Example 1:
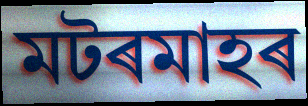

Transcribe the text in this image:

মটৰমাহৰ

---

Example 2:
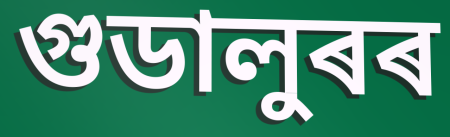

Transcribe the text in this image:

গুডালুৰৰ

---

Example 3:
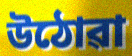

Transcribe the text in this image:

উঠোৱা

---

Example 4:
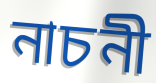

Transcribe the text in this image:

নাচনী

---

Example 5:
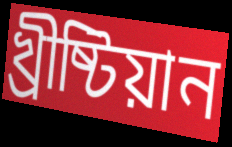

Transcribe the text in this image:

খ্ৰীষ্টিয়ান